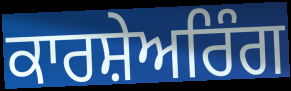
ਕਾਰਸ਼ੇਅਰਿੰਗ